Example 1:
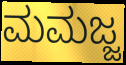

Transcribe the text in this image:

ಮಮಜ್ಜ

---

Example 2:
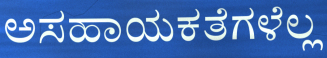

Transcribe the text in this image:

ಅಸಹಾಯಕತೆಗಳೆಲ್ಲ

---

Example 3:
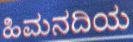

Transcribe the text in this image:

ಹಿಮನದಿಯ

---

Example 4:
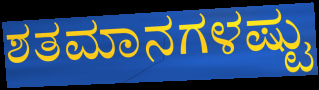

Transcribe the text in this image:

ಶತಮಾನಗಳಷ್ಟು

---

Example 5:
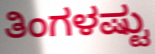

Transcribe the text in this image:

ತಿಂಗಳಷ್ಟು